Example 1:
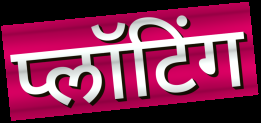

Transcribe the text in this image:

प्लॉटिंग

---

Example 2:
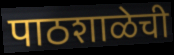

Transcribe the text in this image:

पाठशाळेची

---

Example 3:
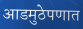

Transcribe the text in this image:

आडमुठेपणात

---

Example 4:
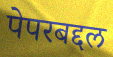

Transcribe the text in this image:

पेपरबद्दल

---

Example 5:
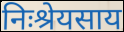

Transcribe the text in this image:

निःश्रेयसाय